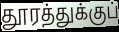
தூரத்துக்குப்